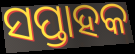
ସପ୍ତାହକ